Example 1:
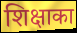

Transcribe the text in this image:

शिक्षाका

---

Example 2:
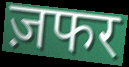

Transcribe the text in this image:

ज़फर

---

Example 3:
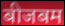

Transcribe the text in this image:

बीजबम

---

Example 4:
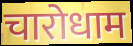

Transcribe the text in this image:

चारोधाम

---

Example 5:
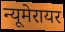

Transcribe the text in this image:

न्यूमेरायर